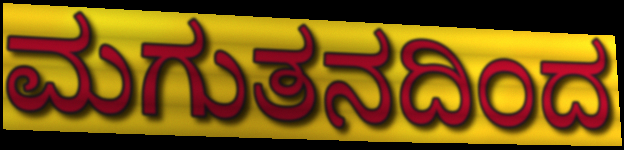
ಮಗುತನದಿಂದ